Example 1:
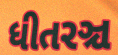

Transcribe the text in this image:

ધીતરઞ્ચ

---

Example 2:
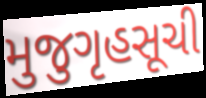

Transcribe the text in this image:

મુજુગૃહસૂચી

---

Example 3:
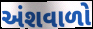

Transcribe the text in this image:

અંશવાળો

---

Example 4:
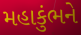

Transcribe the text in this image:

મહાકુંભને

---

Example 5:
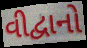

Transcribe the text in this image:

વીદ્વાનો